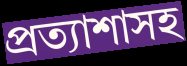
প্রত্যাশাসহ